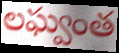
లఘ్వంత